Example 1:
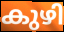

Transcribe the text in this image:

കുഴി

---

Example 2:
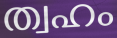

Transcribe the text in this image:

ത്വഹം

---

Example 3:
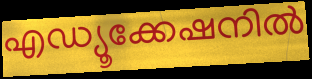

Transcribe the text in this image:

എഡ്യൂക്കേഷനിൽ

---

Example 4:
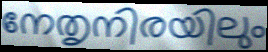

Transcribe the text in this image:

നേതൃനിരയിലും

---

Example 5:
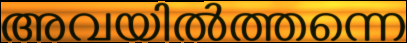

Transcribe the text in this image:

അവയിൽത്തന്നെ